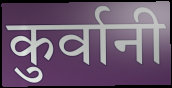
कुर्वानी